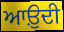
ਆਉ਼ਦੀ